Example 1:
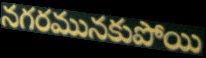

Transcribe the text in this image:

నగరమునకుపోయి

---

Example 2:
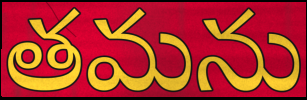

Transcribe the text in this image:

తమను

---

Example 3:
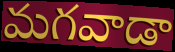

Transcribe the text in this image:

మగవాడా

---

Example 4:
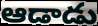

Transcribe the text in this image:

ఆడాడు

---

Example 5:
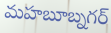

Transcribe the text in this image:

మహబూబ్నగర్